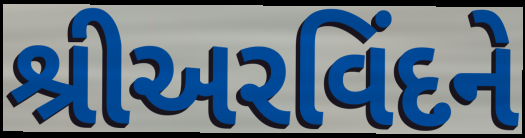
શ્રીઅરવિંદને